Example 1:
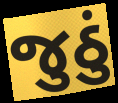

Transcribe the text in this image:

જુઠું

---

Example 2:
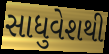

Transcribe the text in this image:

સાધુવેશથી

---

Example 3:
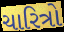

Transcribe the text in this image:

ચારિત્રો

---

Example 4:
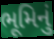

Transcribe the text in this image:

ભૂમિનું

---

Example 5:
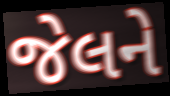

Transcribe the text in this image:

જેલને